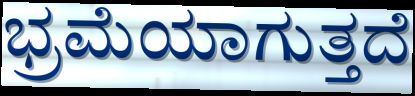
ಭ್ರಮೆಯಾಗುತ್ತದೆ